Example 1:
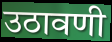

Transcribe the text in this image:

उठावणी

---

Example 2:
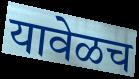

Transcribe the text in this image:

यावेळच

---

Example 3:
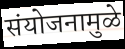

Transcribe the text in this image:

संयोजनामुळे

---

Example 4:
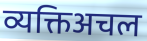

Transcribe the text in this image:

व्यक्तिअचल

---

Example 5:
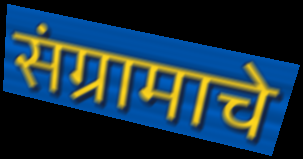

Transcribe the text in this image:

संग्रामाचे